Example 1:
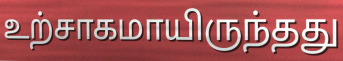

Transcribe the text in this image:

உற்சாகமாயிருந்தது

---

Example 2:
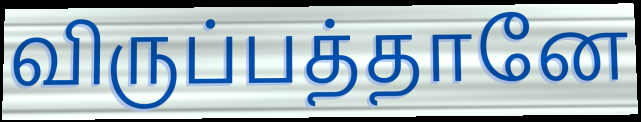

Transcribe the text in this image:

விருப்பத்தானே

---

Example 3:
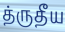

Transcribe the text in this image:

த்ருதீய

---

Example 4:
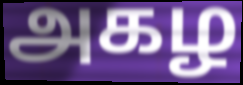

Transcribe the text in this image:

அகழ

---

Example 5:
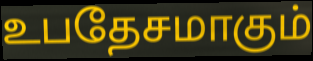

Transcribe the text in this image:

உபதேசமாகும்